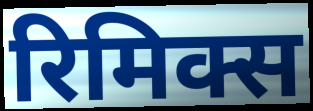
रिमिक्स